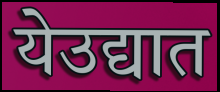
येउद्यात